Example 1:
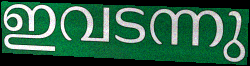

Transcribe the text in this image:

ഇവടന്നു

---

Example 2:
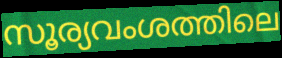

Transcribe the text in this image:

സൂര്യവംശത്തിലെ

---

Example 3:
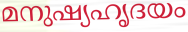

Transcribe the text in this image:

മനുഷ്യഹൃദയം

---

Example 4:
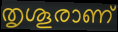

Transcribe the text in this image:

തൃശൂരാണ്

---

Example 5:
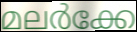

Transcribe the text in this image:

മലർക്കേ